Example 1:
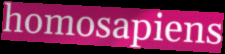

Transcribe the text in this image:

homosapiens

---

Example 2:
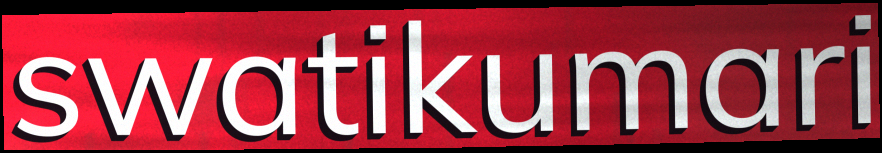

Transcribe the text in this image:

swatikumari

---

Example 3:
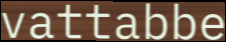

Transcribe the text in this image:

vattabbe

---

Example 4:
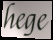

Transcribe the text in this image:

hege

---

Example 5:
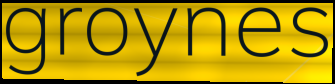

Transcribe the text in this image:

groynes